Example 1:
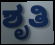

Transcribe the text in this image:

ಶೃತಿ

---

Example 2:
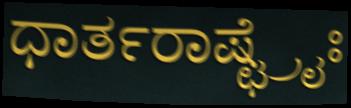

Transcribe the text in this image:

ಧಾರ್ತರಾಷ್ಟ್ರೈಃ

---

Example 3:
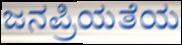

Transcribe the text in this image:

ಜನಪ್ರಿಯತೆಯ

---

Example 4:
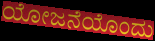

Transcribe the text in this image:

ಯೋಜನೆಯೊಂದು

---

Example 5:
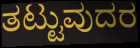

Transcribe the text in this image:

ತಟ್ಟುವುದರ